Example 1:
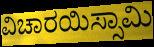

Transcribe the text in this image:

ವಿಚಾರಯಿಸ್ಸಾಮಿ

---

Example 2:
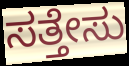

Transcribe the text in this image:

ಸತ್ತೇಸು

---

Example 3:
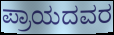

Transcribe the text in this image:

ಪ್ರಾಯದವರ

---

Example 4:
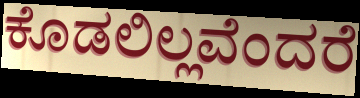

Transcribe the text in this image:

ಕೊಡಲಿಲ್ಲವೆಂದರೆ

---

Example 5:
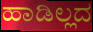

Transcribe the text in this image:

ಹಾಡಿಲ್ಲದ